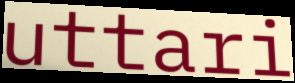
uttari